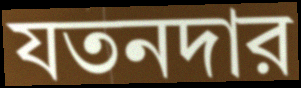
যতনদার